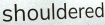
shouldered